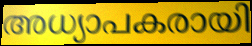
അധ്യാപകരായി